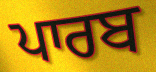
ਪਾਰਬ